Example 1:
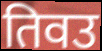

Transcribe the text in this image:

तिवउ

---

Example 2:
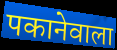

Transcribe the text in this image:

पकानेवाला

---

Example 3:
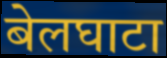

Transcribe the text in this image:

बेलघाटा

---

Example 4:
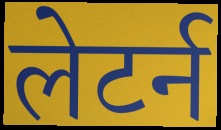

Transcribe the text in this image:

लेटर्न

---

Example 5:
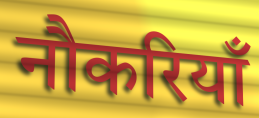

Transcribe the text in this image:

नौकरियाँ